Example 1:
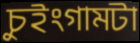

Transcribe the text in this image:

চুইংগামটা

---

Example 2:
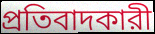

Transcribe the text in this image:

প্রতিবাদকারী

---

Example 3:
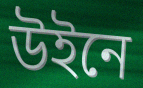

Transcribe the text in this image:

উইনে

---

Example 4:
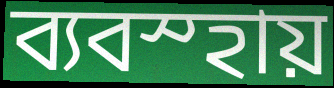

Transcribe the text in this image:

ব্যবস্হায়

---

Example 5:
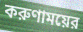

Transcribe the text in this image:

করুণাময়ের